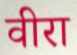
वीरा